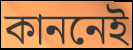
কাননেই